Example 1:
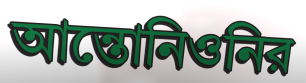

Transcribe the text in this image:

আন্তোনিওনির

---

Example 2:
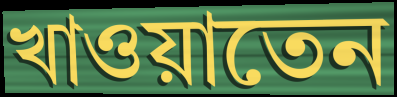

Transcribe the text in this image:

খাওয়াতেন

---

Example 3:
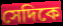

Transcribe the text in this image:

সেদিকে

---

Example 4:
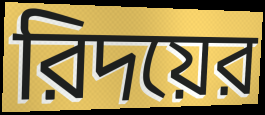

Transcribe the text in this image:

রিদয়ের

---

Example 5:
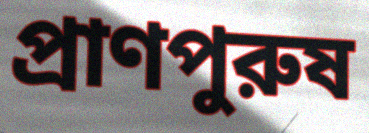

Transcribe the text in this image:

প্রাণপুরুষ